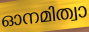
ഓനമിത്വാ